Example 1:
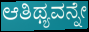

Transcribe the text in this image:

ಆತಿಥ್ಯವನ್ನೇ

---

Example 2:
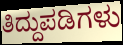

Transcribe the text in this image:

ತಿದ್ದುಪಡಿಗಳು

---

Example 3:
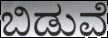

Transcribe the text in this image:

ಬಿಡುವೆ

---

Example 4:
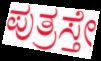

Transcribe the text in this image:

ಪುತ್ರಸ್ತೇ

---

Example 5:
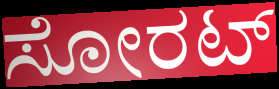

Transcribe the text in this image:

ಸೋರಟ್